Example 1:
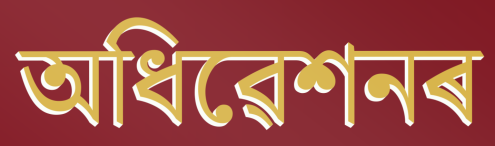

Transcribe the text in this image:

অধিৱেশনৰ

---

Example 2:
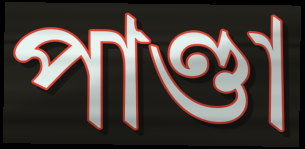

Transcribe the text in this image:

পাণ্ডা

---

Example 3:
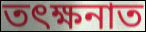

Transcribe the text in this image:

তৎক্ষনাত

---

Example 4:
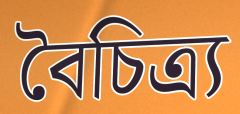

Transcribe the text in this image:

বৈচিত্ৰ্য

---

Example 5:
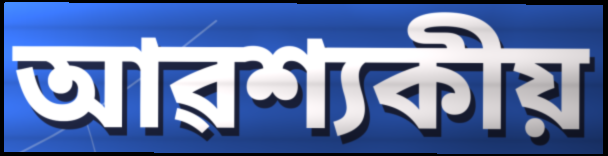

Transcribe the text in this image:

আৱশ্যকীয়